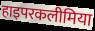
हाइपरकलीमिया